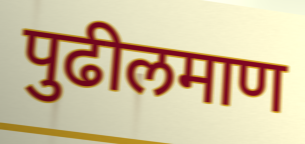
पुढीलमाण